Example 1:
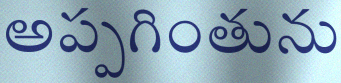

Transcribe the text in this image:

అప్పగింతును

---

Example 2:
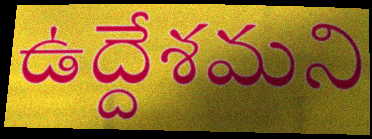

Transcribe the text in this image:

ఉద్దేశమని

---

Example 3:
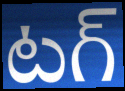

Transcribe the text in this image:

టగ్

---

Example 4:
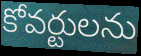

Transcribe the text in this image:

కోవర్టులను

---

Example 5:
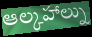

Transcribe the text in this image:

ఆల్కహాల్ను